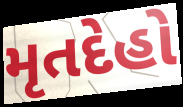
મૃતદેહો